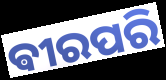
ଵୀରପରି